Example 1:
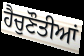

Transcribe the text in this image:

ਹੈਚੁਣੌਤੀਆਂ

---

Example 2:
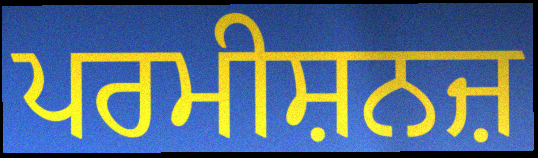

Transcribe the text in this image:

ਪਰਮੀਸ਼ਨਜ਼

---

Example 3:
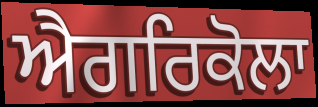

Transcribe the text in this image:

ਐਗਰਿਕੋਲਾ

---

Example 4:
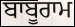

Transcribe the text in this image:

ਬਾਬੂਰਾਮ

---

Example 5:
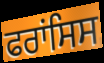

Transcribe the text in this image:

ਫਰਾਂਸਿਸ